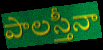
పాలస్తీనా